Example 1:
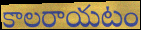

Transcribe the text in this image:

కాలరాయటం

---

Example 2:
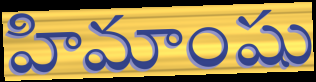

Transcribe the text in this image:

హిమాంషు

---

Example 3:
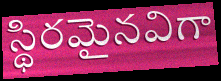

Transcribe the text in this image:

స్థిరమైనవిగా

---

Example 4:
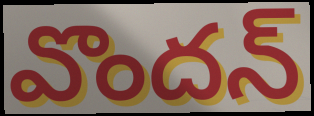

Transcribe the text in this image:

వొందన్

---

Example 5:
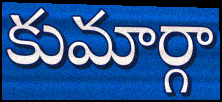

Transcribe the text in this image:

కుమార్గా